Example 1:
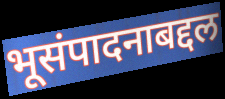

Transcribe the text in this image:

भूसंपादनाबद्दल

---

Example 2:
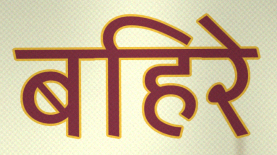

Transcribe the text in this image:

बहिरे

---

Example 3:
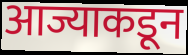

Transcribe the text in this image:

आज्याकडून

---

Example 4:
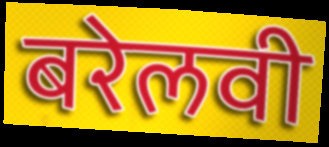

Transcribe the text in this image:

बरेलवी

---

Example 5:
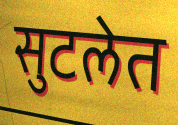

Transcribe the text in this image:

सुटलेत